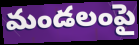
మండలంపై